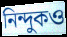
নিন্দুকও